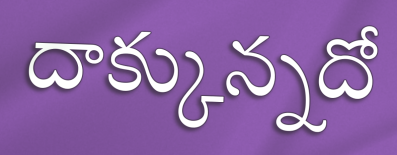
దాక్కున్నదో